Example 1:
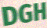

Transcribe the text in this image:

DGH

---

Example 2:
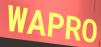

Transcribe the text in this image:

WAPRO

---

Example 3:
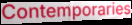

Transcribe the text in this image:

Contemporaries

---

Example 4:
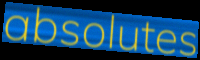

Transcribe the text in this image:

absolutes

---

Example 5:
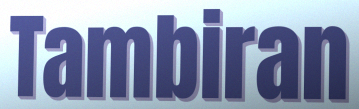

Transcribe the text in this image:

Tambiran